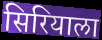
सिरियाला